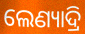
ଲେଣ୍ୟାଦ୍ରି